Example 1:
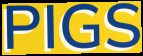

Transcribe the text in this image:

PIGS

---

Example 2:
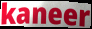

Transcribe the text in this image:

kaneer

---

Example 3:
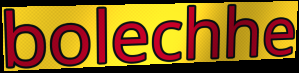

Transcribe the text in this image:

bolechhe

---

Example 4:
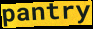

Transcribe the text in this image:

pantry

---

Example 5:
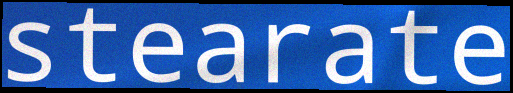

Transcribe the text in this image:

stearate